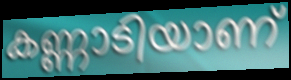
കണ്ണാടിയാണ്